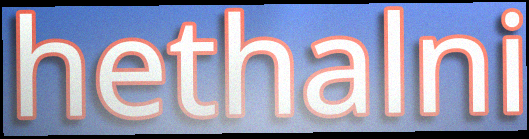
hethalni